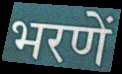
भरणें